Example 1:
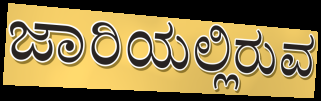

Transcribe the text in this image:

ಜಾರಿಯಲ್ಲಿರುವ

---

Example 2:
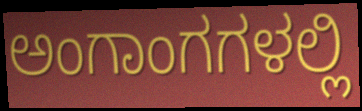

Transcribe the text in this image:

ಅಂಗಾಂಗಗಳಲ್ಲಿ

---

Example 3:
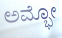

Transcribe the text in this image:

ಅಮ್ಭೋ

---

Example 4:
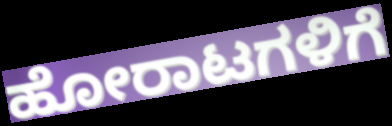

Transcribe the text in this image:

ಹೋರಾಟಗಳಿಗೆ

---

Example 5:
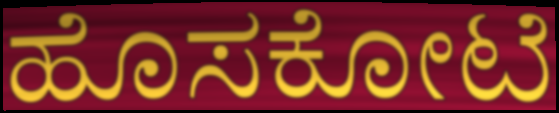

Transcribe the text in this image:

ಹೊಸಕೋಟೆ